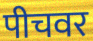
पीचवर